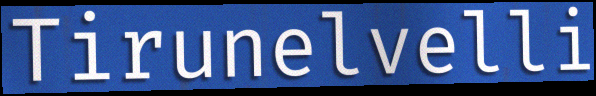
Tirunelvelli